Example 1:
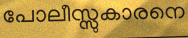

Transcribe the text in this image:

പോലീസ്സുകാരനെ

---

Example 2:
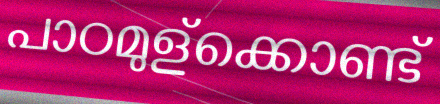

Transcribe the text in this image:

പാഠമുള്ക്കൊണ്ട്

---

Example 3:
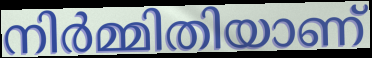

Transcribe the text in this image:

നിർമ്മിതിയാണ്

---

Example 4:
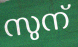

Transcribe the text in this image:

സുന്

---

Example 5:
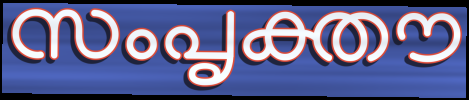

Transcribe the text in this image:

സംപൃക്തൗ